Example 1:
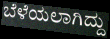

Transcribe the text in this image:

ಬೆಳೆಯಲಾಗಿದ್ದು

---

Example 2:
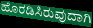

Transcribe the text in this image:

ಹೊರಡಿಸಿರುವುದಾಗಿ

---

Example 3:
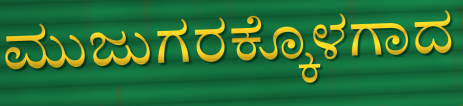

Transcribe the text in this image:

ಮುಜುಗರಕ್ಕೊಳಗಾದ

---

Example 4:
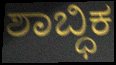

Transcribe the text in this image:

ಶಾಬ್ಧಿಕ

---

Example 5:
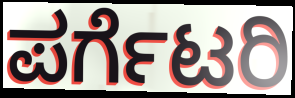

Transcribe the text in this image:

ಪರ್ಗೆಟರಿ